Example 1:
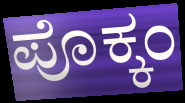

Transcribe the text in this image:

ಪೊಕ್ಕಂ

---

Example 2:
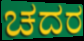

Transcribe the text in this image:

ಚದರ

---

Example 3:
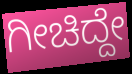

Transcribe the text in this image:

ಗೀಚಿದ್ದೇ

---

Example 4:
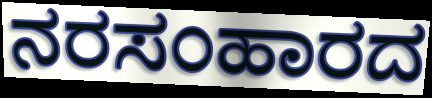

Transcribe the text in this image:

ನರಸಂಹಾರದ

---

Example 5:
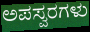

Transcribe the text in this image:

ಅಪಸ್ವರಗಳು